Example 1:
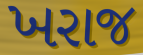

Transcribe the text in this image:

ખરાજ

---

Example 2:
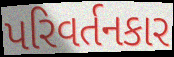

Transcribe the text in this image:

પરિવર્તનકાર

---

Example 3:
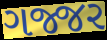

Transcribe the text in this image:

ગજ્જર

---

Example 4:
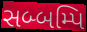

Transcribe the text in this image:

સબ્બમ્પિ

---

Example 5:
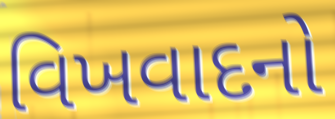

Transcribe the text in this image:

વિખવાદનો